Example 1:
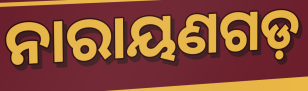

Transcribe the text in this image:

ନାରାୟଣଗଡ଼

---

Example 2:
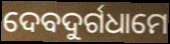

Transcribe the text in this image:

ଦେବଦୁର୍ଗଧାମେ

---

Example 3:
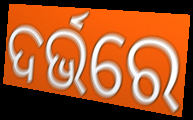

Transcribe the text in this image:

ଦର୍ଭରେ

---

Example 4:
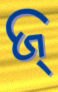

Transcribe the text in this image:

ଜ୍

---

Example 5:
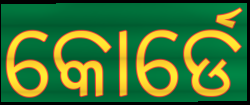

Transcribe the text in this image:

କୋର୍ଡେ